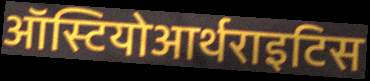
ऑस्टियोआर्थराइटिस